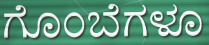
ಗೊಂಬೆಗಳೂ